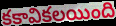
కకావికలయింది